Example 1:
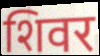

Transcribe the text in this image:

शिवर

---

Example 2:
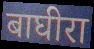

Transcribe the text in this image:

बाघीरा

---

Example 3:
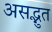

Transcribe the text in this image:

असद्भुत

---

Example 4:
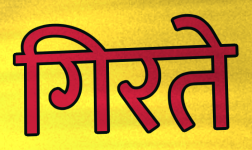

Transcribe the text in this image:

गिरते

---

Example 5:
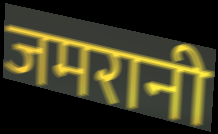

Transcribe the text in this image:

जमरानी